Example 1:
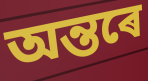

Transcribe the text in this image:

অন্তৰে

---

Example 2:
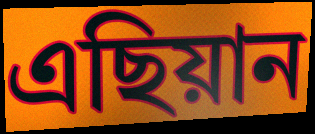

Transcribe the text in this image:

এছিয়ান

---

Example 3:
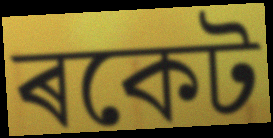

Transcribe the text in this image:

ৰকেট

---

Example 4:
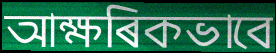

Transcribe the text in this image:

আক্ষৰিকভাবে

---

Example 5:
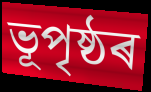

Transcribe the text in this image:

ভূপৃষ্ঠৰ